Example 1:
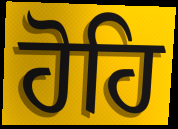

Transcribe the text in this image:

ਹੋਹਿ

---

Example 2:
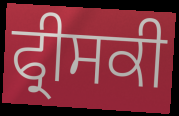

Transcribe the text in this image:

ਫ੍ਰੀਸਕੀ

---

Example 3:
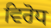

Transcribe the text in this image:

ਵਿਰੋਧ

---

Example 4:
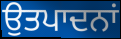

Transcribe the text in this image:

ਉਤਪਾਦਨਾਂ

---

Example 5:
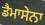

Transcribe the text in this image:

ਡੈਮਾਸੇਨਾ